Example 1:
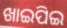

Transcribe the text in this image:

ଖାଇପିଇ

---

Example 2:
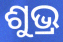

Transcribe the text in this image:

ଶୁଭ୍ର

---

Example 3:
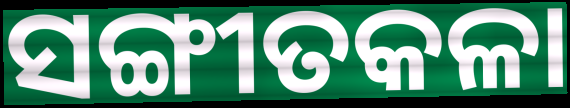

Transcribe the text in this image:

ସଙ୍ଗୀତକଳା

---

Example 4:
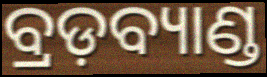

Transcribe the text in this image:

ବ୍ରଡ଼ବ୍ୟାଣ୍ଡ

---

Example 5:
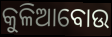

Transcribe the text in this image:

କୁଳିଆବୋଉ